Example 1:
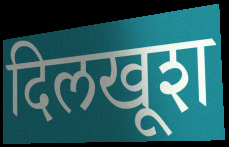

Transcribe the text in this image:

दिलखूश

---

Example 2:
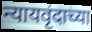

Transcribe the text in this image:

न्यायवृंदाच्या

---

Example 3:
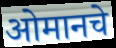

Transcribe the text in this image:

ओमानचे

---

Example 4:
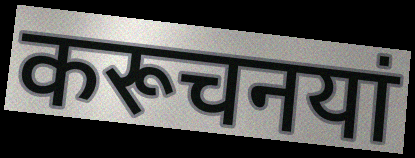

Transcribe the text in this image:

करूचनयां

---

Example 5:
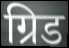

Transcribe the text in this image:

ग्रिड